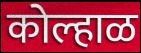
कोल्हाळ